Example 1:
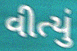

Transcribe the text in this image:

વીત્યું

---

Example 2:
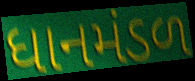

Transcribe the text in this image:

ધાનમંડળ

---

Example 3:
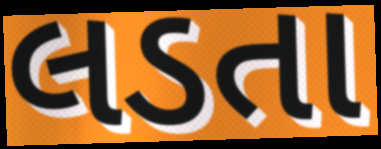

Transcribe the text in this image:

લડતા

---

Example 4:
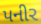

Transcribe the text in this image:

પનીર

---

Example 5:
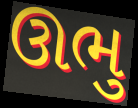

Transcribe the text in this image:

ઊભુ